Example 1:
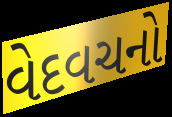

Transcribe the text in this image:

વેદવચનો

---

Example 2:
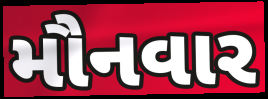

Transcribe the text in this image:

મૌનવાર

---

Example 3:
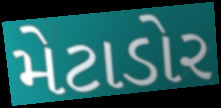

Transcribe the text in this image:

મેટાડોર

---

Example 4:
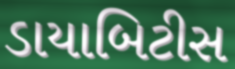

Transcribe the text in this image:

ડાયાબિટીસ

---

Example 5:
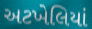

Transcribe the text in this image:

અટખેલિયાં